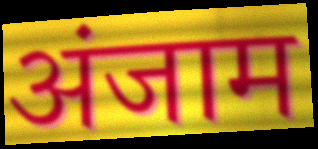
अंजाम